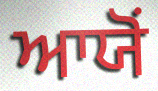
ਆਯੋਂ